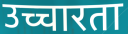
उच्चारता